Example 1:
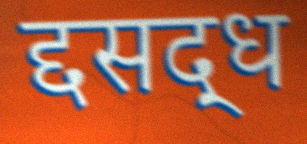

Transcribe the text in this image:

द्दसद्ध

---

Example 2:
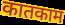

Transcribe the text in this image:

कातकाम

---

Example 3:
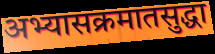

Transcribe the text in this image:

अभ्यासक्रमातसुद्धा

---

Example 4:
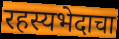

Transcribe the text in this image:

रहस्यभेदाचा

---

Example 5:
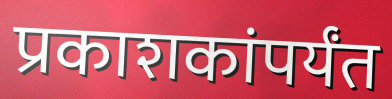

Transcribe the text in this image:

प्रकाशकांपर्यंत